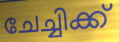
ചേച്ചിക്ക്